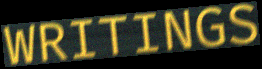
WRITINGS